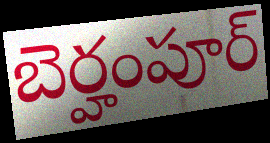
బెర్హంపూర్